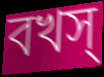
বখস্